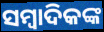
ସମ୍ୱାଦିକଙ୍କ